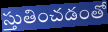
స్తుతించడంతో